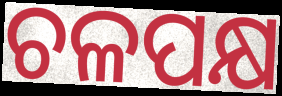
ଚଳପକ୍ଷ